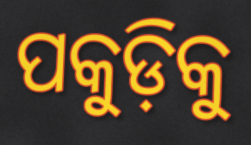
ପକୁଡ଼ିକୁ